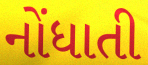
નોંધાતી